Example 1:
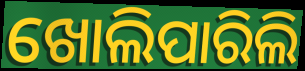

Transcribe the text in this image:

ଖୋଲିପାରିଲି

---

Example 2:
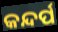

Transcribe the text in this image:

କନ୍ଦର୍ପ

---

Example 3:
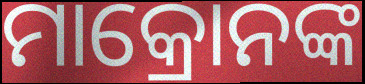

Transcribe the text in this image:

ମାକ୍ରୋନଙ୍କ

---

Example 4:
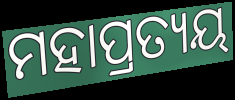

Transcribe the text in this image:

ମହାପ୍ରତ୍ୟୟ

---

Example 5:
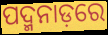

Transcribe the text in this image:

ପଦ୍ମନାଡ଼ରେ